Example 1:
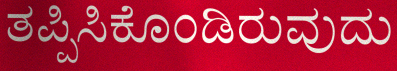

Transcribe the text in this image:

ತಪ್ಪಿಸಿಕೊಂಡಿರುವುದು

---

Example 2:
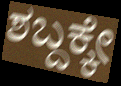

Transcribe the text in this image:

ಶಬ್ದಕ್ಕೇ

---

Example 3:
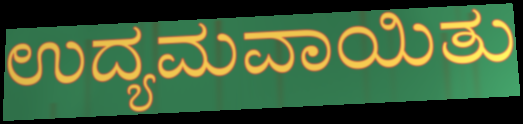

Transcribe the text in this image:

ಉದ್ಯಮವಾಯಿತು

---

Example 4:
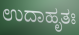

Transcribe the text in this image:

ಉದಾಹೃತಃ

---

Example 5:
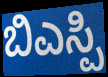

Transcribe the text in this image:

ಬಿಎಸ್ಪಿ